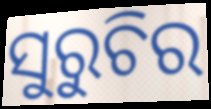
ସୁରୁଚିର